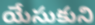
యేసుకుని